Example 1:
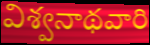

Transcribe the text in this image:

విశ్వనాథవారి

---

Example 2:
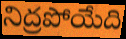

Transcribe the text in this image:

నిద్రపోయేది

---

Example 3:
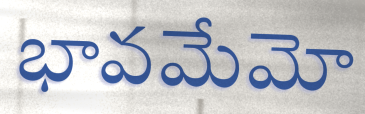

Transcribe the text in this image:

భావమేమో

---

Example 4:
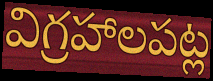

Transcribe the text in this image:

విగ్రహాలపట్ల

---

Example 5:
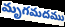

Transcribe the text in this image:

మృగమదము